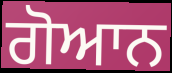
ਗੋਆਨ